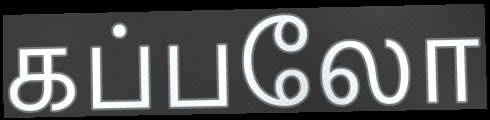
கப்பலோ